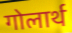
गोलार्थ